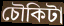
চৌকিটা